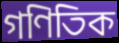
গণিতিক